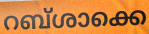
റബ്ശാക്കെ